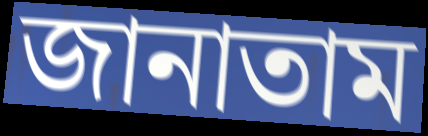
জানাতাম